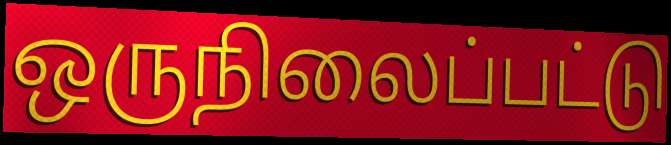
ஒருநிலைப்பட்டு